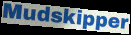
Mudskipper